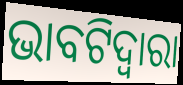
ଭାବଟିଦ୍ୱାରା